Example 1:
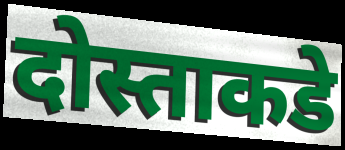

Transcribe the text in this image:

दोस्ताकडे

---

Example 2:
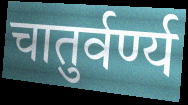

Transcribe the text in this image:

चातुर्वर्ण्य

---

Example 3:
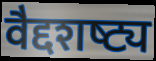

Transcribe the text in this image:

वैद्दशष्ट्य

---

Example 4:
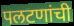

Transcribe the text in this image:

पलटणांची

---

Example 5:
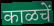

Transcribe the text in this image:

काळचें